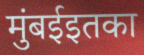
मुंबईइतका